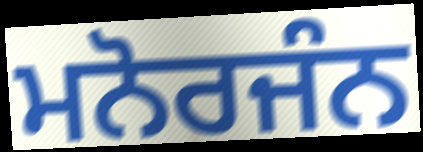
ਮਨੋਰਜੰਨ